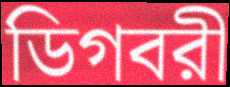
ডিগবরী